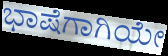
ಭಾಷೆಗಾಗಿಯೇ